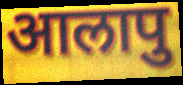
आलापु